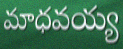
మాధవయ్య